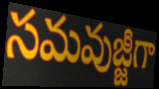
సమవుజ్జీగా